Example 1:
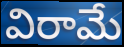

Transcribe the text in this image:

విరామే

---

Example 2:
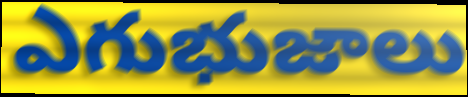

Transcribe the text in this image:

ఎగుభుజాలు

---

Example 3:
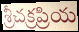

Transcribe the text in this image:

శ్రీచక్రప్రియ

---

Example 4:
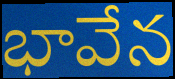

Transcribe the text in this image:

భావేన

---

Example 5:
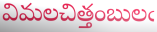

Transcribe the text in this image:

విమలచిత్తంబులఁ